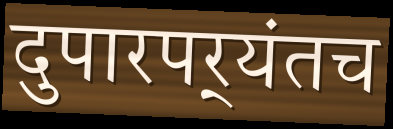
दुपारपर्यंतच